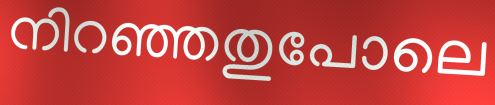
നിറഞ്ഞതുപോലെ